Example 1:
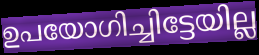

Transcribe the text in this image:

ഉപയോഗിച്ചിട്ടേയില്ല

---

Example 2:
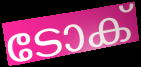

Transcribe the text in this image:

ടോക്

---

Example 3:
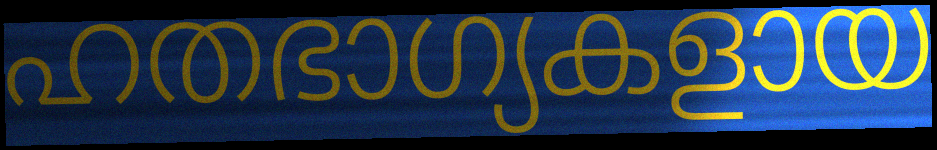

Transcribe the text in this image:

ഹതഭാഗ്യകളായ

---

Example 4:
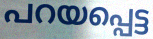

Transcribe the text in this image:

പറയപ്പെട്ട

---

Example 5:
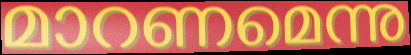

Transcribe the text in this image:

മാറണമെന്നു